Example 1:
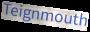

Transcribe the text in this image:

Teignmouth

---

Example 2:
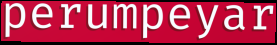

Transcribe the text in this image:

perumpeyar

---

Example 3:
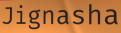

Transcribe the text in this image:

Jignasha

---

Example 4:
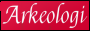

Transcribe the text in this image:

Arkeologi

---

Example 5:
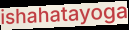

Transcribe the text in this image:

ishahatayoga